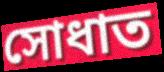
সোধাত